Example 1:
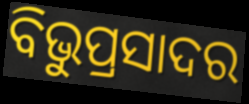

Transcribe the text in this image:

ବିଭୁପ୍ରସାଦର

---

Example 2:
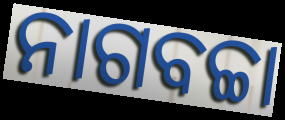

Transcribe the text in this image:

ନାଗବଚ୍ଚା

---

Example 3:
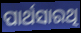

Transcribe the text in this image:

ପାର୍ଥସାରଥି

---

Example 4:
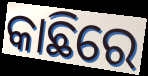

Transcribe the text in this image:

କାଛିରେ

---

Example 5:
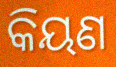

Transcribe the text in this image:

କିୟଣ